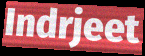
Indrjeet